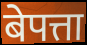
बेपत्ता